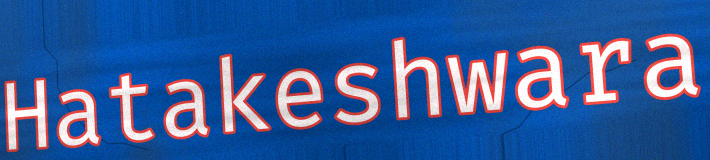
Hatakeshwara